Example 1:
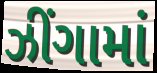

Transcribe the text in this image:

ઝીંગામાં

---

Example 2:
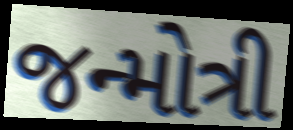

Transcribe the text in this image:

જન્મોત્રી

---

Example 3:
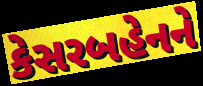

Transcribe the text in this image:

કેસરબહેનને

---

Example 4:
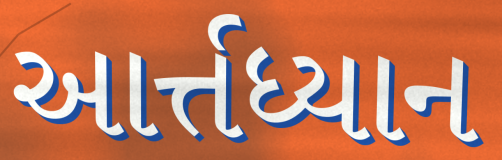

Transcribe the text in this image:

આર્ત્તધ્યાન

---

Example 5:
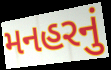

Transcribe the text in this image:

મનહરનું